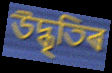
উদ্ধৃতিৰ